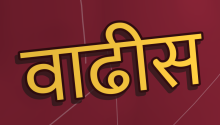
वाढीस